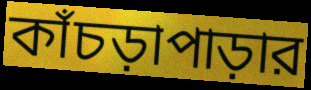
কাঁচড়াপাড়ার